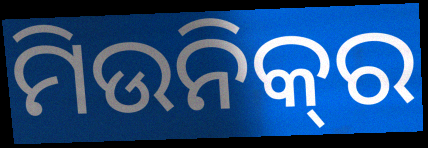
ମିଉନିକ୍‌ର